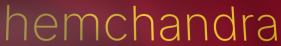
hemchandra